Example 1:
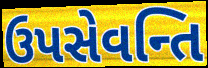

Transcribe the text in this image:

ઉપસેવન્તિ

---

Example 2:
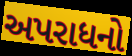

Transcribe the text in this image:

અપરાધનો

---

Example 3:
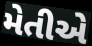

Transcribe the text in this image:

મેતીએ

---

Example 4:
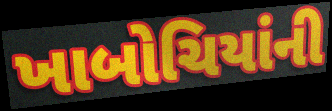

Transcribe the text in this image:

ખાબોચિયાંની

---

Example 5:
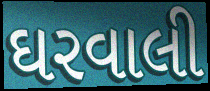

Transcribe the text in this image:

ઘરવાલી